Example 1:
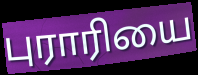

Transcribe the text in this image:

புராரியை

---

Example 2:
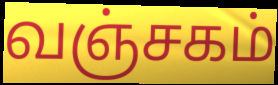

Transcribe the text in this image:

வஞ்சகம்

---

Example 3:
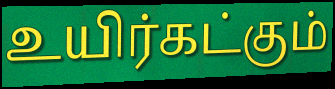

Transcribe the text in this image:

உயிர்கட்கும்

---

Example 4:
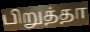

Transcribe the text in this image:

பிறுத்தா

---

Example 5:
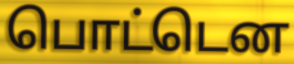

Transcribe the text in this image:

பொட்டென